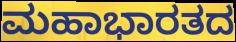
ಮಹಾಭಾರತದ